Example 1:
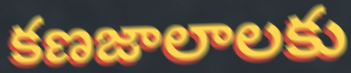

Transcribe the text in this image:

కణజాలాలకు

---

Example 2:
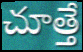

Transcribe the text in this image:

చూత్తే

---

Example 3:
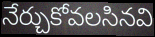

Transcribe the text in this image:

నేర్చుకోవలసినవి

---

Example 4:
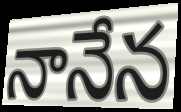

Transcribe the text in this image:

నానేన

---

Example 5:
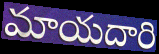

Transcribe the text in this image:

మాయదారి